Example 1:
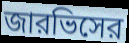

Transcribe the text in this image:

জারভিসের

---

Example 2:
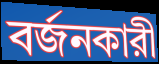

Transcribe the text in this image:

বর্জনকারী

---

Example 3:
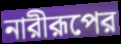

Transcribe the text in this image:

নারীরূপের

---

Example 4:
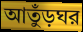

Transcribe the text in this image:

আতুঁড়ঘর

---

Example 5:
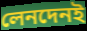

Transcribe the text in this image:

লেনদেনই